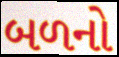
બળનો